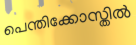
പെന്തിക്കോസ്തിൽ